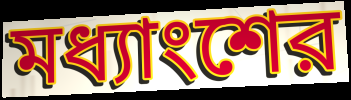
মধ্যাংশের